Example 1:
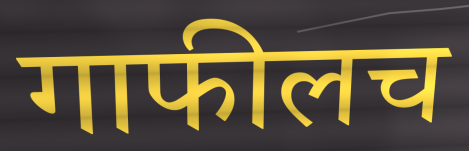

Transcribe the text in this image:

गाफीलच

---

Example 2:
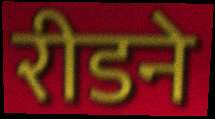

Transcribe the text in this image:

रीडने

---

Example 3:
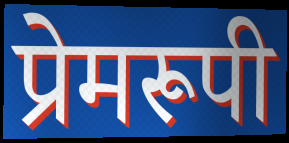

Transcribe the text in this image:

प्रेमरूपी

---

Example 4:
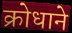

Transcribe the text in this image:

क्रोधाने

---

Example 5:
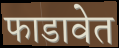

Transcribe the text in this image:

फाडावेत